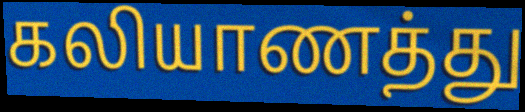
கலியாணத்து